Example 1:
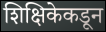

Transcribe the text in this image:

शिक्षिकेकडून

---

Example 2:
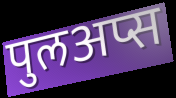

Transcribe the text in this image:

पुलअप्स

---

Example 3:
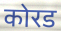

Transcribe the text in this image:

कोरड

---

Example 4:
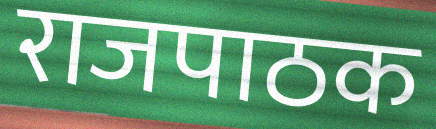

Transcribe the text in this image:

राजपाठक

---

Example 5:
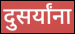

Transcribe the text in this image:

दुसर्यांना